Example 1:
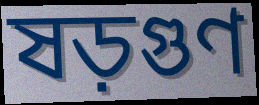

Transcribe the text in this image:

ষড়গুণ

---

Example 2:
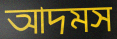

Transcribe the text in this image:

আদমস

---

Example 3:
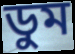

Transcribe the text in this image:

ডুম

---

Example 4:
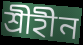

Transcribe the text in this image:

শ্রীহীন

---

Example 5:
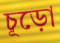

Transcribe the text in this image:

চূড়ো